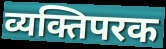
व्यक्तिपरक